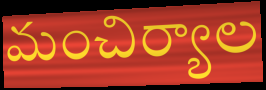
మంచిర్యాల